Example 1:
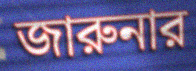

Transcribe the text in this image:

জারুনার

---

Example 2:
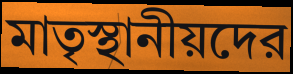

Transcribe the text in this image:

মাতৃস্থানীয়দের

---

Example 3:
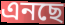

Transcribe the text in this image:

এনছে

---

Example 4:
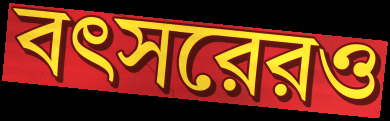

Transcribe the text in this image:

বৎসরেরও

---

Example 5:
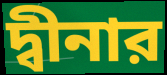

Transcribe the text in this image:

দ্বীনার